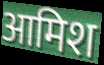
आमिश